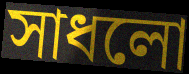
সাধলো